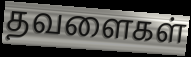
தவளைகள்